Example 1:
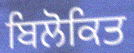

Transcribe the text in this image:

ਬਿਲੋਕਿਤ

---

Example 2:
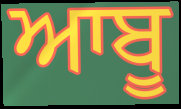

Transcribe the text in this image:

ਆਬੂ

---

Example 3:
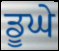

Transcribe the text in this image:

ਡੂਘੇ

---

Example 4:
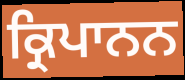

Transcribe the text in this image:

ਕ੍ਰਿਪਾਨਨ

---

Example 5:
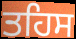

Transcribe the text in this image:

ਤਹਿਸ